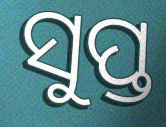
ସୁପ୍ତ